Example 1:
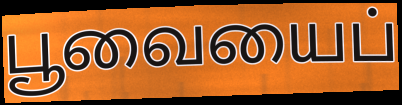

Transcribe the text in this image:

பூவையைப்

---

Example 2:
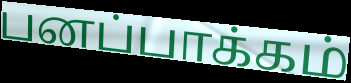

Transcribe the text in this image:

பனப்பாக்கம்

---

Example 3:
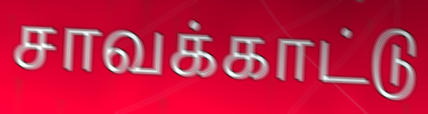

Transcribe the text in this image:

சாவக்காட்டு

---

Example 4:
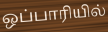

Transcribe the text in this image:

ஒப்பாரியில்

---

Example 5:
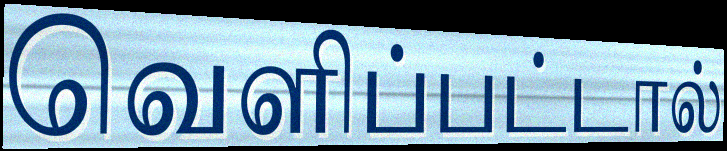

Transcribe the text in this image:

வெளிப்பட்டால்